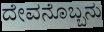
ದೇವನೊಬ್ಬನು